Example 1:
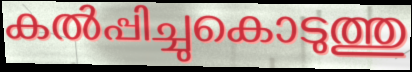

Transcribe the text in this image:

കൽപ്പിച്ചുകൊടുത്തു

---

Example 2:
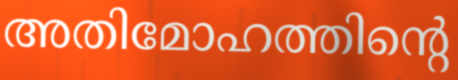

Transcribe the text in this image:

അതിമോഹത്തിന്റെ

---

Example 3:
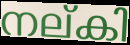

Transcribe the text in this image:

നല്‌കി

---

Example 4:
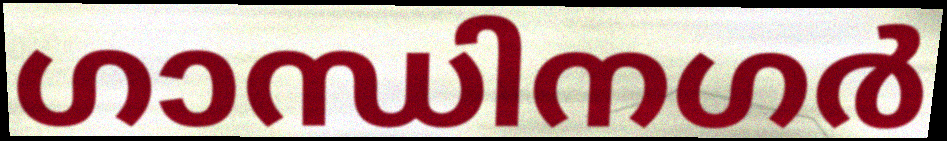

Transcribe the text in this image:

ഗാന്ധിനഗർ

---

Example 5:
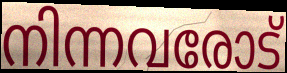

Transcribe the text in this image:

നിന്നവരോട്